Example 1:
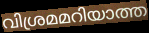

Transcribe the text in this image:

വിശ്രമമറിയാത്ത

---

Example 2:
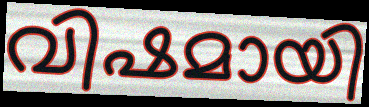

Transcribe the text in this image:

വിഷമായി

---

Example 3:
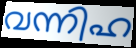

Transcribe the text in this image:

വന്നിഹ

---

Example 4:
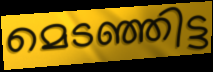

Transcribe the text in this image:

മെടഞ്ഞിട്ട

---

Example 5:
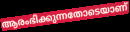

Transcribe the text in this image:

ആരംഭിക്കുന്നതോടെയാണ്